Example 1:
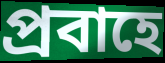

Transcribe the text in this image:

প্রবাহে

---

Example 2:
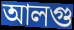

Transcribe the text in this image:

আলগু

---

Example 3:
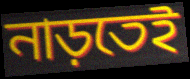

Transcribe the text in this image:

নাড়তেই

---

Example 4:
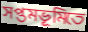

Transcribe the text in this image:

সপ্তমভূমিতে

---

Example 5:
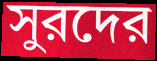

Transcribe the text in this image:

সুরদের